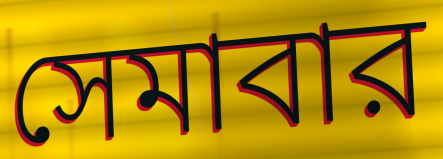
সেমাবার